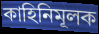
কাহিনিমূলক